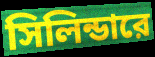
সিলিন্ডারে